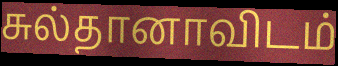
சுல்தானாவிடம்